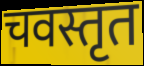
चवस्तृत